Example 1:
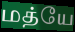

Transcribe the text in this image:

மத்யே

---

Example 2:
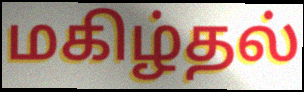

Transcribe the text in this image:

மகிழ்தல்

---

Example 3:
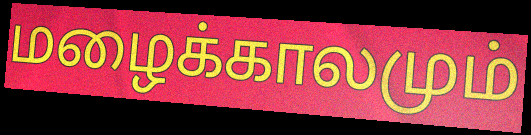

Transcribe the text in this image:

மழைக்காலமும்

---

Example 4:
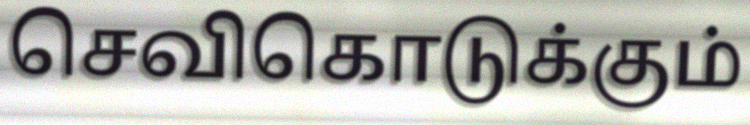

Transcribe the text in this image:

செவிகொடுக்கும்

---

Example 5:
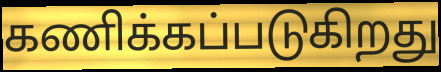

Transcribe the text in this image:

கணிக்கப்படுகிறது